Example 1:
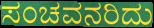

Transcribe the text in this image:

ಸಂಚವನರಿದು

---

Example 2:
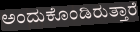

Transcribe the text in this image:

ಅಂದುಕೊಂಡಿರುತ್ತಾರೆ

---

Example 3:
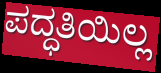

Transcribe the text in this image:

ಪದ್ಧತಿಯಿಲ್ಲ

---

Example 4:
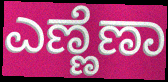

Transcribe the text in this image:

ಎಣ್ಣೆಣಾ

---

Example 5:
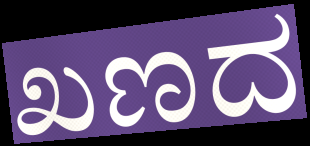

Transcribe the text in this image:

ಖಣದ